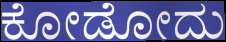
ಕೋಡೋದು